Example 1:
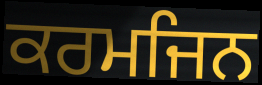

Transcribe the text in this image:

ਕਰਮਜਿਨ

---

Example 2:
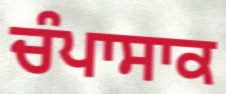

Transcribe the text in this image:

ਚੰਪਾਸਾਕ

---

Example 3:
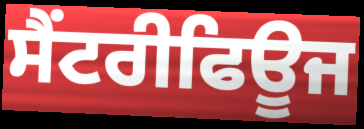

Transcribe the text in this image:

ਸੈਂਟਰੀਫਿਊਜ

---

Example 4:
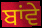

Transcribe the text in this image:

ਬਾਂਵੇ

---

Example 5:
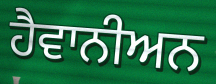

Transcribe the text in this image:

ਹੈਵਾਨੀਅਨ